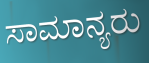
ಸಾಮಾನ್ಯರು